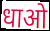
धाओ